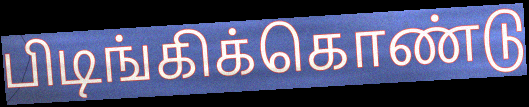
பிடிங்கிக்கொண்டு